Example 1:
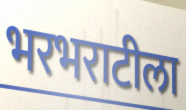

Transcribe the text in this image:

भरभराटीला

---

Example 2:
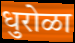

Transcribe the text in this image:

धुरोळा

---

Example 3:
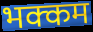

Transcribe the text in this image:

भक्‍कम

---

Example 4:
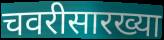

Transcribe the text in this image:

चवरीसारख्या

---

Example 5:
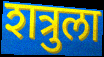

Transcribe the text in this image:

शत्रुला